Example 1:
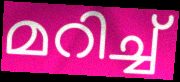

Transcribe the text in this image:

മറിച്ച്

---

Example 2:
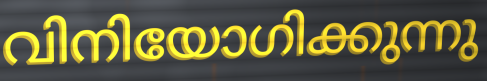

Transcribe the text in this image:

വിനിയോഗിക്കുന്നു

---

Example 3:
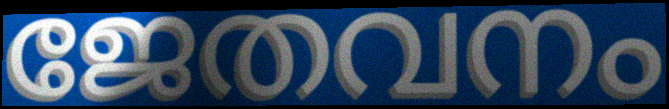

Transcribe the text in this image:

ജേതവനം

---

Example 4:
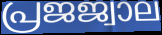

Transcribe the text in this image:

പ്രജജ്വാല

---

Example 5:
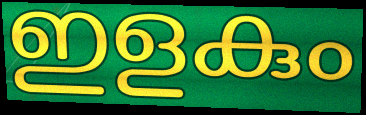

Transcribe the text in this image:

ഇളകും